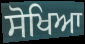
ਸੋਖਿਆ